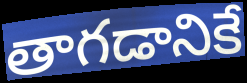
తాగడానికే